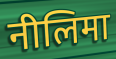
नीलिमा